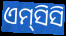
ଏମ୍‌ସିସି